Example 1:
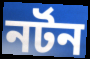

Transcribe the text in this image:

নৰ্টন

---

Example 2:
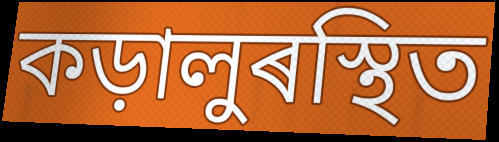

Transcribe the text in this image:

কড়ালুৰস্থিত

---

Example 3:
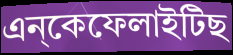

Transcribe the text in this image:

এন্কেফেলাইটিছ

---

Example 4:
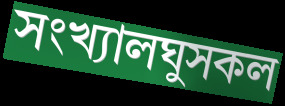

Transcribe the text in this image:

সংখ্যালঘুসকল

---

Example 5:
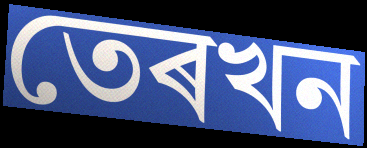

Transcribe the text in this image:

তেৰখন